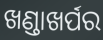
ଖଣ୍ଡାଖର୍ପର